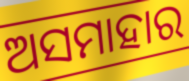
ଅସମାହାର